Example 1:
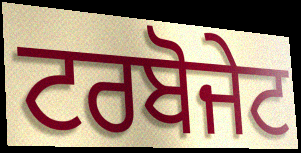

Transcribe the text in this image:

ਟਰਬੋਜੇਟ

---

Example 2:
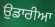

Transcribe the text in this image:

ਉਡਾਰੀਆ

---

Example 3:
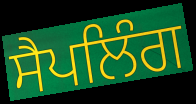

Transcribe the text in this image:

ਸੈਪਲਿੰਗ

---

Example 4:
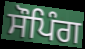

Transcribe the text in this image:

ਸੌਪਿੰਗ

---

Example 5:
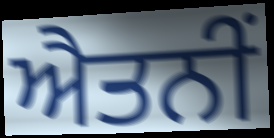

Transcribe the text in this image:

ਐਤਨੀਂ